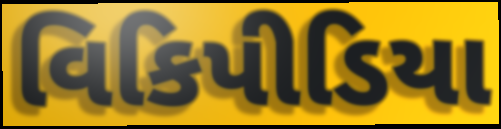
વિકિપીડિયા